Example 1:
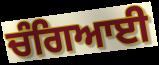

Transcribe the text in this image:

ਚੰਗਿਆਈ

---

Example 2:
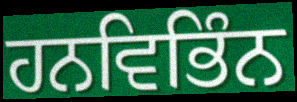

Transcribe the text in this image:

ਹਨਵਿਭਿੰਨ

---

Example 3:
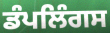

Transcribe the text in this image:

ਡੰਪਲਿੰਗਸ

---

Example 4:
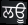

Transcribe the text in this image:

ਲਊ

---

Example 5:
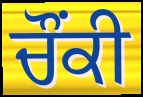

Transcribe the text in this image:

ਚੌਂਕੀ